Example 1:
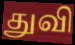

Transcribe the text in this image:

துவி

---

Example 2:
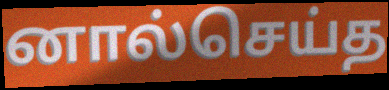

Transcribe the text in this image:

னால்செய்த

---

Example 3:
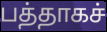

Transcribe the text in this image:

பத்தாகச்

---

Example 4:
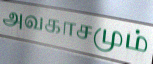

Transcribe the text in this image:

அவகாசமும்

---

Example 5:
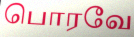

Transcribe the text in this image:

பொரவே